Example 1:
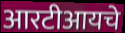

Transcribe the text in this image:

आरटीआयचे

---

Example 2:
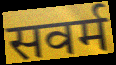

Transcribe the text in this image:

सवर्म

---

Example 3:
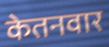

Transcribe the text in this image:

केतनवार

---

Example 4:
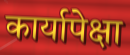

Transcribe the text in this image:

कार्यापेक्षा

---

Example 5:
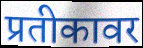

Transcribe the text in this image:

प्रतीकावर